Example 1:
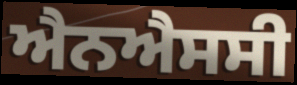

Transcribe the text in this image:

ਐਨਐਸਸੀ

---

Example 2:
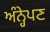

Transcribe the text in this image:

ਅੰਨ੍ਹੇਪਣ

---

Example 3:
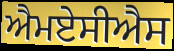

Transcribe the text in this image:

ਐਮਏਸੀਐਸ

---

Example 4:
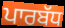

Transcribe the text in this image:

ਪਾਰਬੱਧ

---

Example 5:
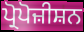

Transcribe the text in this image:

ਪ੍ਰੋਪੋਜ਼ੀਸ਼ਨ